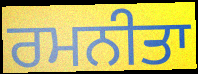
ਰਮਨੀਤਾ